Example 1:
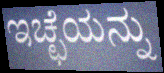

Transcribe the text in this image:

ಇಚ್ಛೆಯನ್ನು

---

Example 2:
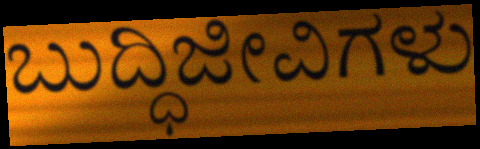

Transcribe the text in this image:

ಬುದ್ಧಿಜೀವಿಗಳು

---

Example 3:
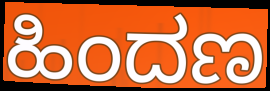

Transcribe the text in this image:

ಹಿಂದಣ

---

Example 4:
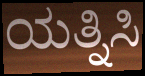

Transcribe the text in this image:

ಯತ್ನಿಸಿ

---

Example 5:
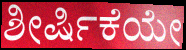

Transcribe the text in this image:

ಶೀರ್ಷಿಕೆಯೇ